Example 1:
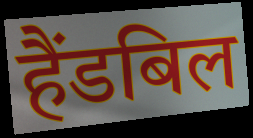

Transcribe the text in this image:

हैंडबिल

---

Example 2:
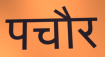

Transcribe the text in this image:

पचौर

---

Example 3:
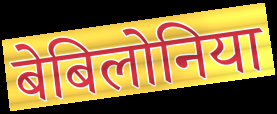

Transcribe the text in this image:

बेबिलोनिया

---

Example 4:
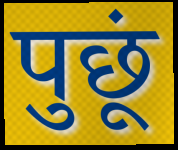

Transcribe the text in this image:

पुछूं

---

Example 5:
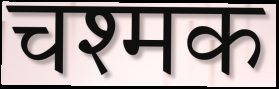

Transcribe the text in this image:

चश्मक